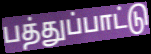
பத்துப்பாட்டு